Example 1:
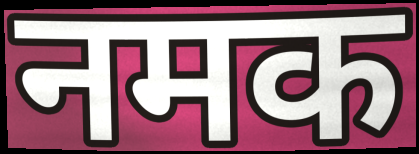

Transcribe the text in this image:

नमक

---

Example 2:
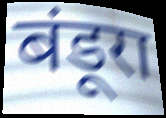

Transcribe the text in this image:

बंडूरा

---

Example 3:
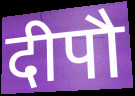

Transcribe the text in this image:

दीपौ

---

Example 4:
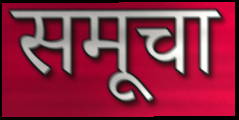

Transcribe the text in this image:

समूचा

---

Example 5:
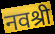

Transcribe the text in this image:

नवश्री